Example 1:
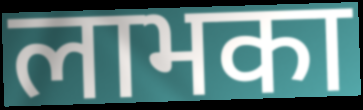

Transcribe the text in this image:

लाभका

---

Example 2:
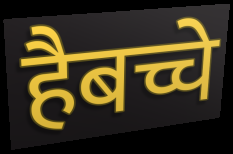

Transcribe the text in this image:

हैबच्चे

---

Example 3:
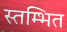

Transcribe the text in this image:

स्तम्भित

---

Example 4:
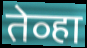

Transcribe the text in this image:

तेव्हा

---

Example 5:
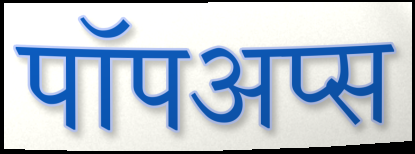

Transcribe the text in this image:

पॉपअप्स